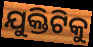
ଯୁକ୍ତିଟିକୁ